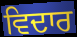
ਵਿਦਾਰ